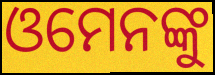
ଓମେନଙ୍କୁ